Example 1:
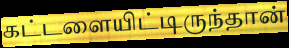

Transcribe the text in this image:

கட்டளையிட்டிருந்தான்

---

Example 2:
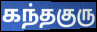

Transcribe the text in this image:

கந்தகுரு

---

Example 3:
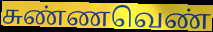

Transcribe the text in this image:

சுண்ணவெண்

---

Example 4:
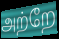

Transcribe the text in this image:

அற்றே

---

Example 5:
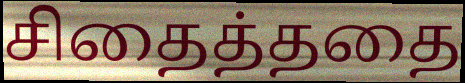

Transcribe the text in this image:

சிதைத்ததை